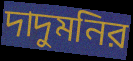
দাদুমনির